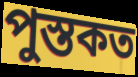
পুস্তকত